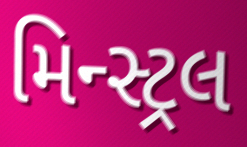
મિન્સ્ટ્રલ